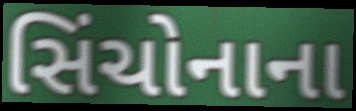
સિંચોનાના